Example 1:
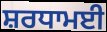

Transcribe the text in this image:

ਸ਼ਰਧਾਮਈ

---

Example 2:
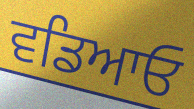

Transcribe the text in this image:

ਵਡਿਆਓ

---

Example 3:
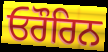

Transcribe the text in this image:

ਓਰੌਰਿਨ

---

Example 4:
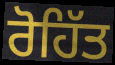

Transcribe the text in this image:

ਰੋਹਿੱਤ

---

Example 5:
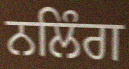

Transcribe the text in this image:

ਨਲਿੰਗ